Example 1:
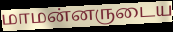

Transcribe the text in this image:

மாமன்னருடைய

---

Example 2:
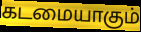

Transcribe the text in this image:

கடமையாகும்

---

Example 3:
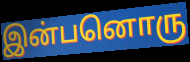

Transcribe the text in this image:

இன்பனொரு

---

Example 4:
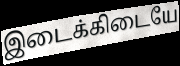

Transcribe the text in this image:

இடைக்கிடையே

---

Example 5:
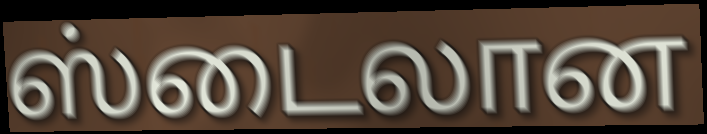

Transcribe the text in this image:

ஸ்டைலான